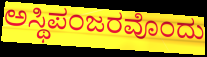
ಅಸ್ಥಿಪಂಜರವೊಂದು